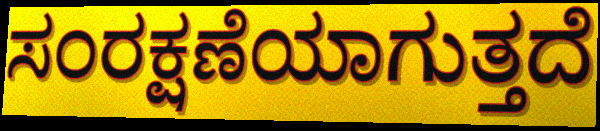
ಸಂರಕ್ಷಣೆಯಾಗುತ್ತದೆ